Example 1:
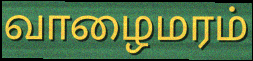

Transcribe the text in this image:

வாழைமரம்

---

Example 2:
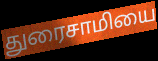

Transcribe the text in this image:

துரைசாமியை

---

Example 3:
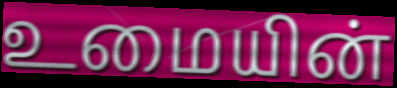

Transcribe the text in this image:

உமையின்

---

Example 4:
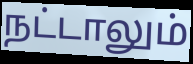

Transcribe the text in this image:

நட்டாலும்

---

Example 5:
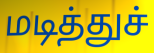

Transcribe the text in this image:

மடித்துச்